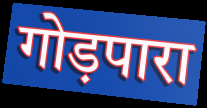
गोड़पारा